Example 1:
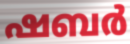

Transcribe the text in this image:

ഷബർ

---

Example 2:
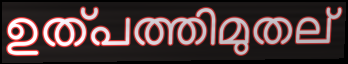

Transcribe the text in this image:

ഉത്പത്തിമുതല്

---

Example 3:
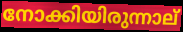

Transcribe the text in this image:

നോക്കിയിരുന്നാല്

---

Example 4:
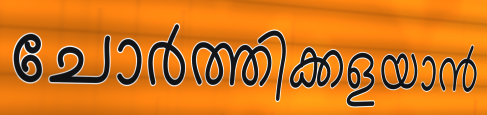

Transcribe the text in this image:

ചോർത്തിക്കളയാൻ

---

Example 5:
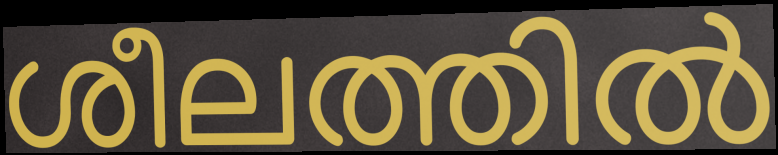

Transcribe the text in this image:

ശീലത്തിൽ